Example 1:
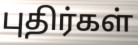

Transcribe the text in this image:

புதிர்கள்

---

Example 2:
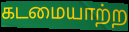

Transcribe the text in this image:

கடமையாற்ற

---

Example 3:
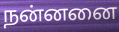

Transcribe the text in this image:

நன்னனை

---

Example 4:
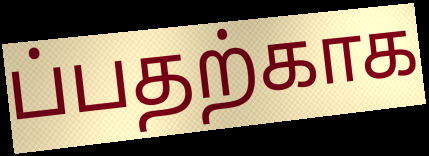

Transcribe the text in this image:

ப்பதற்காக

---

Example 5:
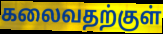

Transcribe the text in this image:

கலைவதற்குள்